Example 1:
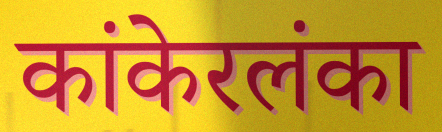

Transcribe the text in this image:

कांकेरलंका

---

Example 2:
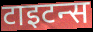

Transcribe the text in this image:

टाइटन्स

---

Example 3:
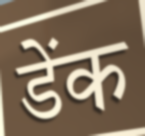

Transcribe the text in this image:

डेंक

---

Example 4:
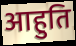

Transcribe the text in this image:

आहुति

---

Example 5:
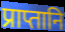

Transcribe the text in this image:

प्राप्तानि